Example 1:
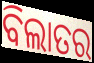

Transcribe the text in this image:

ବିଲାତର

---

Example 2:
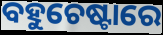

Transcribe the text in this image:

ବହୁଚେଷ୍ଟାରେ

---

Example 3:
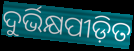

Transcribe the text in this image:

ଦୁର୍ଭିକ୍ଷପୀଡ଼ିତ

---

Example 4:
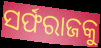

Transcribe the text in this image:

ସର୍ଫରାଜକୁ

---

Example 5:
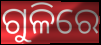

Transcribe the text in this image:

ଗୁଳିରେ